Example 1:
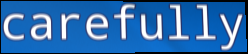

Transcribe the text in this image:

carefully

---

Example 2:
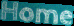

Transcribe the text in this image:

Home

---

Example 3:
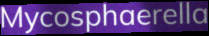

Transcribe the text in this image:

Mycosphaerella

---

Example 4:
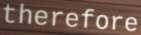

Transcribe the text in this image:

therefore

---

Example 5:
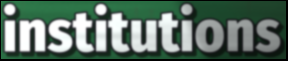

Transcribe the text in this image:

institutions